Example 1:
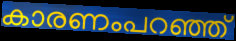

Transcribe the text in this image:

കാരണംപറഞ്ഞ്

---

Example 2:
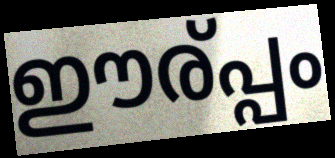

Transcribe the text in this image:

ഈര്പ്പം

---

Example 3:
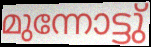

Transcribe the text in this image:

മുന്നോട്ടു്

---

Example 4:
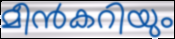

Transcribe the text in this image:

മീൻകറിയും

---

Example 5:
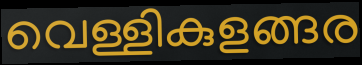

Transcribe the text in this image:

വെള്ളികുളങ്ങര